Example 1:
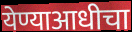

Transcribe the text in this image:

येण्याआधीचा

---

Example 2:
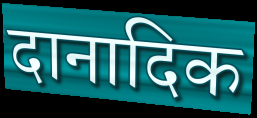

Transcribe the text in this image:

दानादिक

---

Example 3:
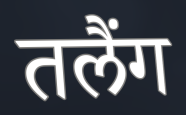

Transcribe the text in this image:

तलैंग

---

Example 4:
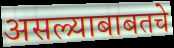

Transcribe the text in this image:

असल्याबाबतचे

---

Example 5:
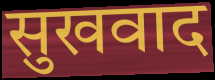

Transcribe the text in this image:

सुखवाद